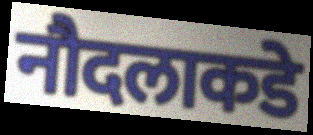
नौदलाकडे